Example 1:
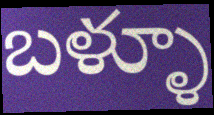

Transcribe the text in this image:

బళ్ళూ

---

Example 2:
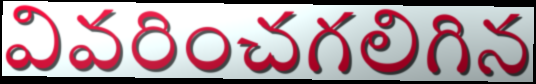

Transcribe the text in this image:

వివరించగలిగిన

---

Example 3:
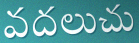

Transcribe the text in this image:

వదలుచు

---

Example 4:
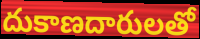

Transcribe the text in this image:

దుకాణదారులతో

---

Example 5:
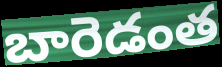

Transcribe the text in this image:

బారెడంత